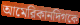
আমেরিকানদিগকে